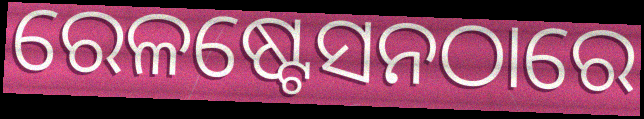
ରେଳଷ୍ଟେସନଠାରେ